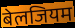
बेलजियम